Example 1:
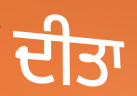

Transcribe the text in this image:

ਦੀਤਾ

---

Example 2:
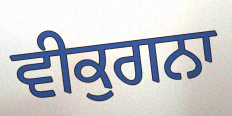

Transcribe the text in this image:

ਵੀਕੁਗਨਾ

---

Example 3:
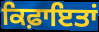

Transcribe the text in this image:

ਕਿਫ਼ਾਇਤਾਂ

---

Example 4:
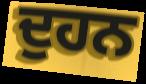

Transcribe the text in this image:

ਦੁਹਨ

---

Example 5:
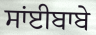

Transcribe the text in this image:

ਸਾਂਈਬਾਬੇ